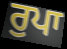
ਰੁਪਾ